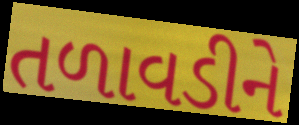
તળાવડીને